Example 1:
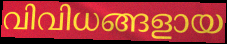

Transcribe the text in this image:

വിവിധങ്ങളായ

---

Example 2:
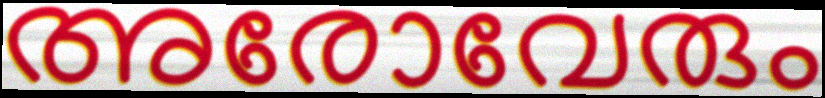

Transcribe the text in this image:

അരോവേരും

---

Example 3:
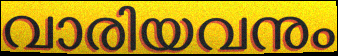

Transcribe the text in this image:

വാരിയവനും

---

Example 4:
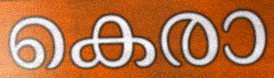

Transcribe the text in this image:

കെരാ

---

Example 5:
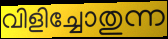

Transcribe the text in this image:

വിളിച്ചോതുന്ന